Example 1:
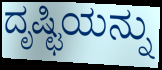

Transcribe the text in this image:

ದೃಷ್ಟಿಯನ್ನು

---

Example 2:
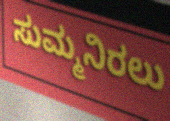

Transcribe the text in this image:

ಸುಮ್ಮನಿರಲು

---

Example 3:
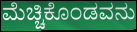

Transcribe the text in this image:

ಮೆಚ್ಚಿಕೊಂಡವನು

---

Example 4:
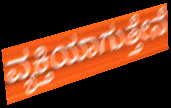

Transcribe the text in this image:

ವ್ಯಕ್ತಿಯಾಗುತ್ತೇನೆ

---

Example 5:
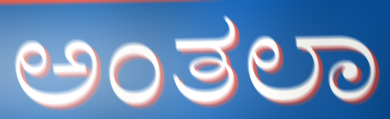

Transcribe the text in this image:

ಅಂತಲಾ